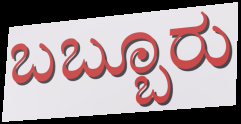
ಬಬ್ಬೂರು